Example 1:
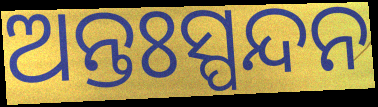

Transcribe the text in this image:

ଅନ୍ତଃସ୍ପନ୍ଦନ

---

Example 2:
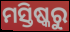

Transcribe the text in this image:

ମସ୍ତିଷ୍କରୁ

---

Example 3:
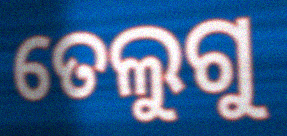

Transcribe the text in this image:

ତେଲୁଗୁ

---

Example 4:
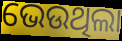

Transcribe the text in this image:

ଭେଉଥିଲା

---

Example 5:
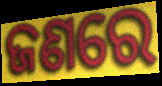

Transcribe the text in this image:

ଜଣରେ